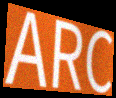
ARC